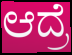
ಆದ್ರೆ